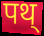
पथ्